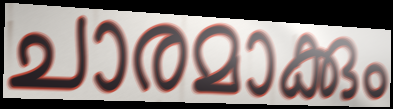
ചാരമാക്കും